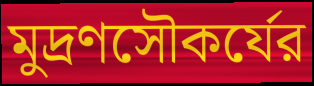
মুদ্রণসৌকর্যের